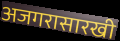
अजगरासारखी